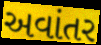
અવાંતર